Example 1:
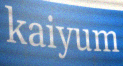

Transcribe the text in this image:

kaiyum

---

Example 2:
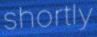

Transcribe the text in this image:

shortly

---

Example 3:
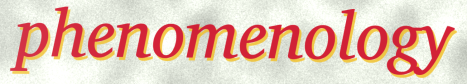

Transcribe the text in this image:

phenomenology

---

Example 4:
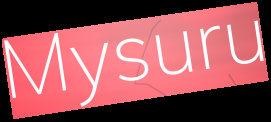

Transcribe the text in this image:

Mysuru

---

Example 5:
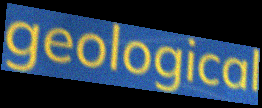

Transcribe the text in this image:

geological